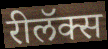
रीलॅक्स